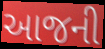
આજની